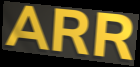
ARR